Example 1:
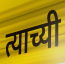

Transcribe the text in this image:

त्याच्यी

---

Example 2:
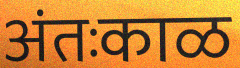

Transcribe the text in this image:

अंतःकाळ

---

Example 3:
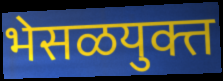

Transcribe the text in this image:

भेसळयुक्त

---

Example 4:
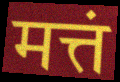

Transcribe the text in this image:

मत्तं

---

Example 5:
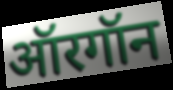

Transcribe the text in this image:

ऑरगॉन